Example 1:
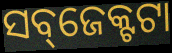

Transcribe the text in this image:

ସବ୍‌ଜେକ୍ଟଟା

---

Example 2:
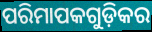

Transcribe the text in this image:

ପରିମାପକଗୁଡ଼ିକର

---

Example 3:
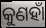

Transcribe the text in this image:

କୁଣହାଁ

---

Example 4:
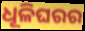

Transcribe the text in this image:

ଧୂଳିଘରର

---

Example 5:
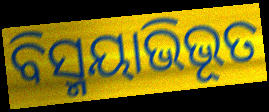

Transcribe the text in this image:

ବିସ୍ମୟାଭିଭୂତ